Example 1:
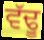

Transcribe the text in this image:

ਵੱਢੂ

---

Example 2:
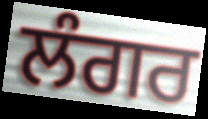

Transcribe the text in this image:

ਲੰਗਰ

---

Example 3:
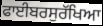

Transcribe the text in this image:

ਫਾਈਬਰਸੁਰੱਖਿਆ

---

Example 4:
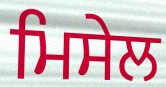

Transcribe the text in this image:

ਮਿਸੇਲ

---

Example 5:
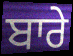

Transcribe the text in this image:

ਬਾਰੇ